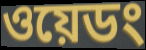
ওয়েডং